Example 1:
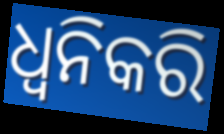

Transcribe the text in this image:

ଧ୍ୱନିକରି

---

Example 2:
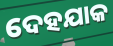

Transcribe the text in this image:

ଦେହଯାକ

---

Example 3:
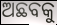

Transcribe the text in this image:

ଅଛବକୁ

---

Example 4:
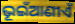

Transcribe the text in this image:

ଭୂଇଁଆଣୀଏଁ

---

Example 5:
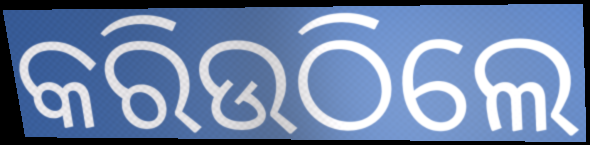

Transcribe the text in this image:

କରିଉଠିଲେ